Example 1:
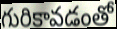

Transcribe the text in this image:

గురికావడంతో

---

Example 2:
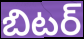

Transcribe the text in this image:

బిటర్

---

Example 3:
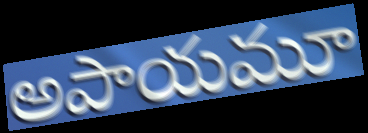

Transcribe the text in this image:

అపాయమూ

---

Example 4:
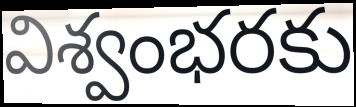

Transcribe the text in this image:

విశ్వంభరకు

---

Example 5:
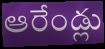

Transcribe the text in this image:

ఆరేండ్లు